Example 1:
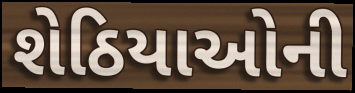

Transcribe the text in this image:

શેઠિયાઓની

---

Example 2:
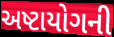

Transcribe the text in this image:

અષ્ટાયોગની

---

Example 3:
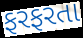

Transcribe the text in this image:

ફરફરતા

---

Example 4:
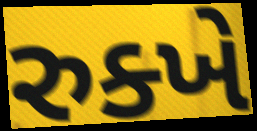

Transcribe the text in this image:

રુક્ખે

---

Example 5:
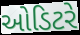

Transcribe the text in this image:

ઓડિટરે